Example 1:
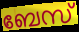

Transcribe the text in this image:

ബേസ്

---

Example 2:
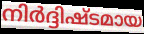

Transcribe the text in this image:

നിർദ്ദിഷ്ടമായ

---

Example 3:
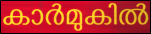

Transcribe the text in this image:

കാർമുകിൽ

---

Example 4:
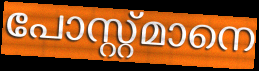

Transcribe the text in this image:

പോസ്റ്റ്മാനെ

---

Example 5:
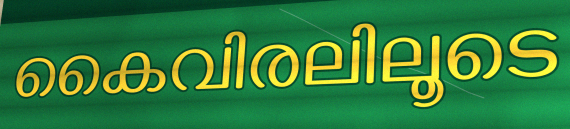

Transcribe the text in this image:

കൈവിരലിലൂടെ